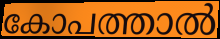
കോപത്താൽ